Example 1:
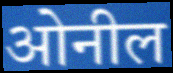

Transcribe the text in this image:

ओनील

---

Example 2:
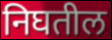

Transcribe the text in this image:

निघतील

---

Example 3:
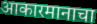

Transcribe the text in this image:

आकारमानाचा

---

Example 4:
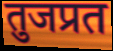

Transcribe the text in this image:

तुजप्रत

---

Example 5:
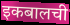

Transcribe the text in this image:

इकबालची